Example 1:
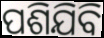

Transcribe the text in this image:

ପଶିଯିବି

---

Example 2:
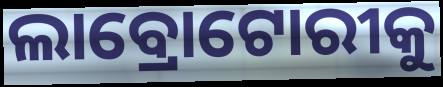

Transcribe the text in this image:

ଲାବ୍ରୋଟୋରୀକୁ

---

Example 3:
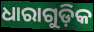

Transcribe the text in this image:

ଧାରାଗୁଡ଼ିକ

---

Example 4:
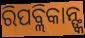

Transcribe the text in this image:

ରିପବ୍ଲିକାନ୍ଙ୍କ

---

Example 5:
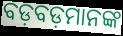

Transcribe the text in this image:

ବଡ଼ବଡ଼ମାନଙ୍କ